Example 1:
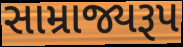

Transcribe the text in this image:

સામ્રાજ્યરૂપ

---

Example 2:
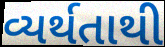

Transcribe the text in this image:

વ્યર્થતાથી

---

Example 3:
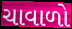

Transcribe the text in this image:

ચાવાળો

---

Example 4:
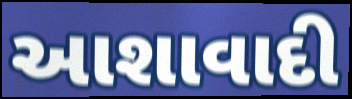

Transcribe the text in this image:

આશાવાદી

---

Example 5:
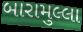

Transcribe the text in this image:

બારામુલ્લા